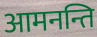
आमनन्ति